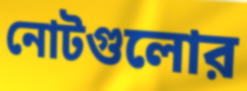
নোটগুলোর